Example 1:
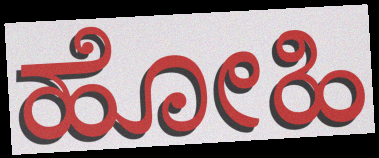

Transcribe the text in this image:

ಹೋಹಿ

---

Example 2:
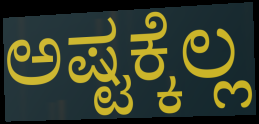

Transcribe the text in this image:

ಅಷ್ಟಕ್ಕೆಲ್ಲ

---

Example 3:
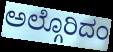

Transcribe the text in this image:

ಅಲ್ಗೊರಿದಂ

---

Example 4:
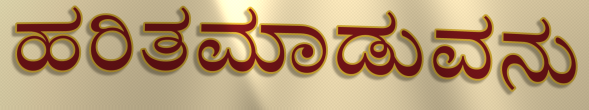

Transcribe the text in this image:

ಹರಿತಮಾಡುವನು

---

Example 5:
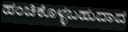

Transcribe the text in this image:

ಹಂಚಿಕೊಳ್ಳಬಹುದಾದ